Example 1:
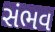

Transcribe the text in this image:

સંભવ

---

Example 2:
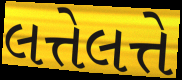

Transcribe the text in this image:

લત્તેલત્તે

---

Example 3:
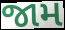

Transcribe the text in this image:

જામ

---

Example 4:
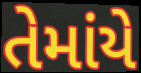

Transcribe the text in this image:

તેમાંયે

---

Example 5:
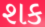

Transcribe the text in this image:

શક